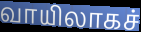
வாயிலாகச்